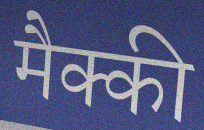
मैक्की